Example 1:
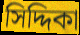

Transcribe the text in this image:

সিদ্দিকা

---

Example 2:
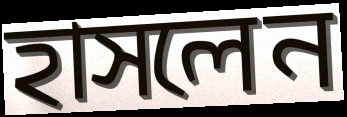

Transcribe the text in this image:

হাসলেন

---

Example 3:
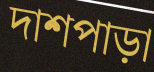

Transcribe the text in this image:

দাশপাড়া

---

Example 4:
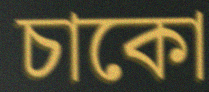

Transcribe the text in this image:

চাকো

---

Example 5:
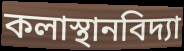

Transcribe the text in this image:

কলাস্থানবিদ্যা